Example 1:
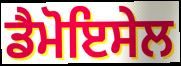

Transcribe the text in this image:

ਡੈਮੋਇਸੇਲ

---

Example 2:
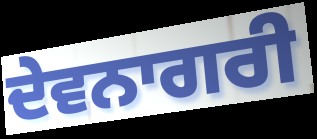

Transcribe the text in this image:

ਦੇਵਨਾਗਰੀ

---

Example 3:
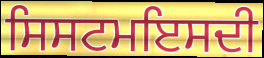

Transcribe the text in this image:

ਸਿਸਟਮਇਸਦੀ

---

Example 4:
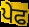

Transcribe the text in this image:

ਪੇਫ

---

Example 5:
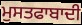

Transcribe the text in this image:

ਮੁਸਤਫਾਬਾਦੀ